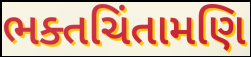
ભક્તચિંતામણિ